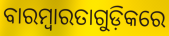
ବାରମ୍ବାରତାଗୁଡ଼ିକରେ